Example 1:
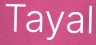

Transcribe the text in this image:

Tayal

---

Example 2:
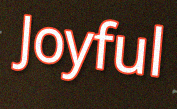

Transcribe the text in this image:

Joyful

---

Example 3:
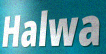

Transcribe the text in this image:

Halwa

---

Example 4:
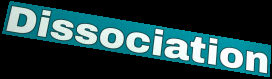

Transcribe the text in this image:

Dissociation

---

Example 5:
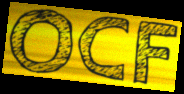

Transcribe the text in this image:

OCF